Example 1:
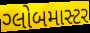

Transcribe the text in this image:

ગ્લોબમાસ્ટર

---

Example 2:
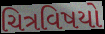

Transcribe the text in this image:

ચિત્રવિષયો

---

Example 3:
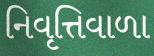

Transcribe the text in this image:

નિવૃત્તિવાળા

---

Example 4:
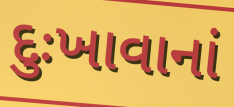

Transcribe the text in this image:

દુઃખાવાનાં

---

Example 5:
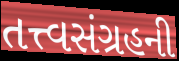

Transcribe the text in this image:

તત્ત્વસંગ્રહની